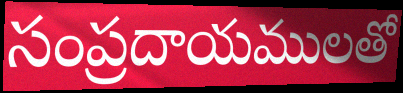
సంప్రదాయములతో